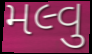
મલ્વુ